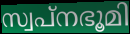
സ്വപ്നഭൂമി